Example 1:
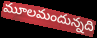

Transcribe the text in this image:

మూలమందున్నది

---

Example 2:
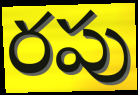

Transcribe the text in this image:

రపు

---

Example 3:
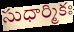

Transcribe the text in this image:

సుధార్మికః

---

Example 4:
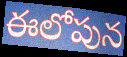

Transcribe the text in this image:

ఈలోపున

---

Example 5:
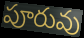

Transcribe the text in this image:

పూరువు